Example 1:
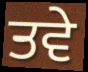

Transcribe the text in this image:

ਤਵੇ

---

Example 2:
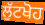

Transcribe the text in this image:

ਲੁੱਟਖੋਹ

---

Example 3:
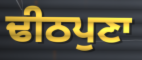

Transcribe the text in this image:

ਢੀਠਪੁਣਾ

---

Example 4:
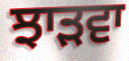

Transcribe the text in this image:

ਝਾੜਵਾ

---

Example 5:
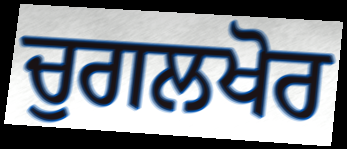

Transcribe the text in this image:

ਚੁਗਲਖੋਰ